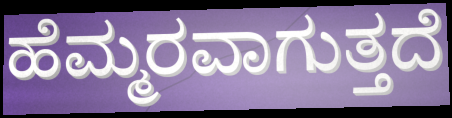
ಹೆಮ್ಮರವಾಗುತ್ತದೆ